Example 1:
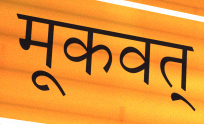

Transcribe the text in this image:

मूकवत्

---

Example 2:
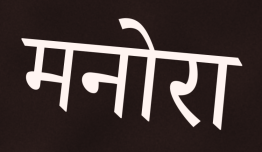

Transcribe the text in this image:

मनोरा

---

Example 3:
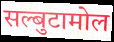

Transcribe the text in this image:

सल्बुटामोल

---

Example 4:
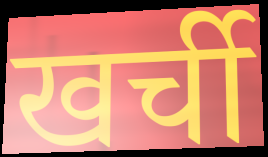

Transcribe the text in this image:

खर्ची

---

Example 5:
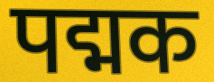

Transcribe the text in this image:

पद्मक